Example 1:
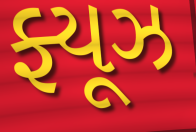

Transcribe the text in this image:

ફ્યૂઝ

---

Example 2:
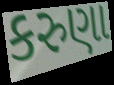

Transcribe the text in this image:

કરુણા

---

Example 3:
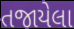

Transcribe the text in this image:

તજાયેલા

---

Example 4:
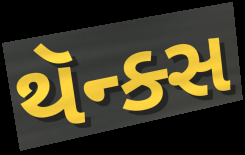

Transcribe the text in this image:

થૅન્ક્સ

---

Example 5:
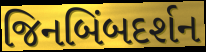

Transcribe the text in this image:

જિનબિંબદર્શન